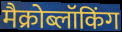
मैक्रोब्लॉकिंग